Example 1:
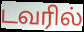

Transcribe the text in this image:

டவரில்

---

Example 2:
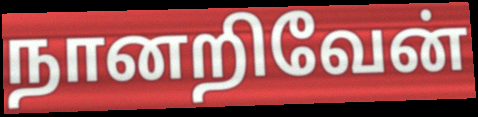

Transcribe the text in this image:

நானறிவேன்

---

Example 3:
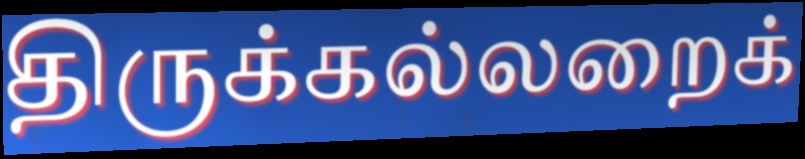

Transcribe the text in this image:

திருக்கல்லறைக்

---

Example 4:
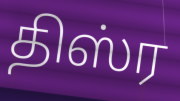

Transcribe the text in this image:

திஸ்ர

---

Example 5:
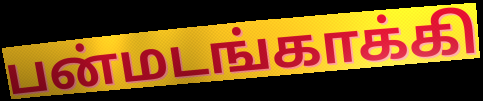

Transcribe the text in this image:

பன்மடங்காக்கி